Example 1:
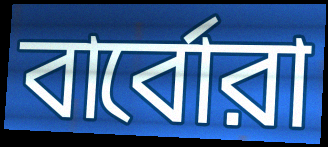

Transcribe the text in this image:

বার্বোরা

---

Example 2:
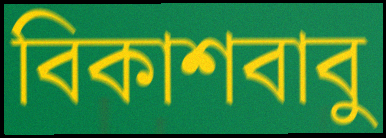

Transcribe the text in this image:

বিকাশবাবু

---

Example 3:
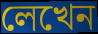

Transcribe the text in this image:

লেখেন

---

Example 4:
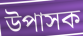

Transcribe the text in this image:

উপাসক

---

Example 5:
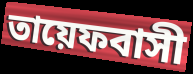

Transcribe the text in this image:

তায়েফবাসী